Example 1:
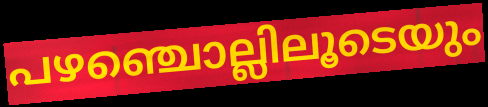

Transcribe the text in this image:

പഴഞ്ചൊല്ലിലൂടെയും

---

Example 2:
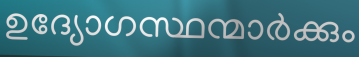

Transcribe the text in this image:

ഉദ്യോഗസ്ഥന്മാർക്കും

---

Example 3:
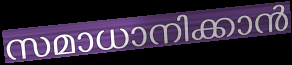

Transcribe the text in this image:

സമാധാനിക്കാൻ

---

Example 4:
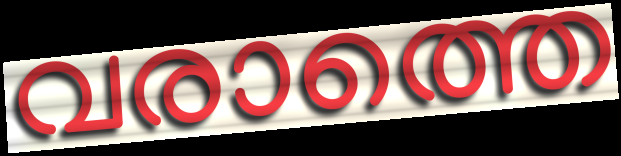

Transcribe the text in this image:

വരാത്തെ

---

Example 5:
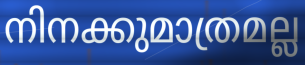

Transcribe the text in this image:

നിനക്കുമാത്രമല്ല